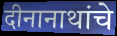
दीनानाथांचे